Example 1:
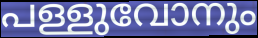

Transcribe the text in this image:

പള്ളുവോനും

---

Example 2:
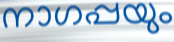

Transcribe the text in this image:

നാഗപ്പയും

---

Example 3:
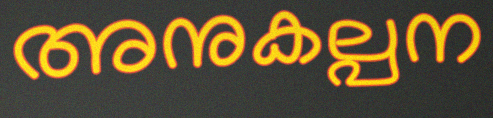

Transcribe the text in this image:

അനുകല്പന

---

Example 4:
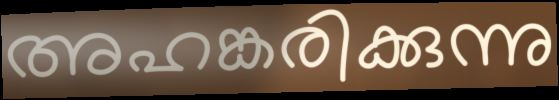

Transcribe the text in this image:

അഹങ്കരിക്കുന്നു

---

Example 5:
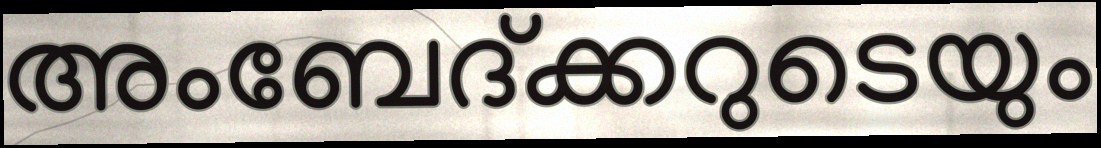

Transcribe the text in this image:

അംബേദ്ക്കറുടെയും